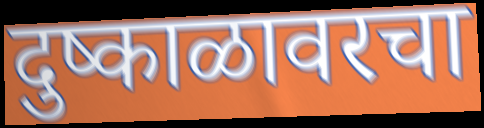
दुष्काळावरचा